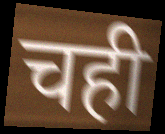
चही